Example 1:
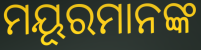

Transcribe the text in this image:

ମୟୂରମାନଙ୍କ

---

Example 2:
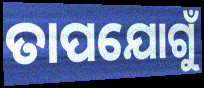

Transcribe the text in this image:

ତାପଯୋଗୁଁ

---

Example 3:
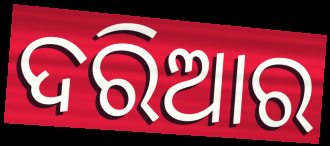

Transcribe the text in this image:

ଦରିଆର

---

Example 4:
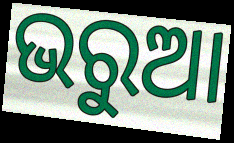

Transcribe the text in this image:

ଭରୁଆ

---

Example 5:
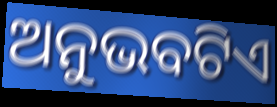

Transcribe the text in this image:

ଅନୁଭବଟିଏ